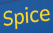
Spice